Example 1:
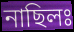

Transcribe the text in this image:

নাছিলঃ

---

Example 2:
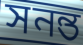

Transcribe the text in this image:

সনন্ত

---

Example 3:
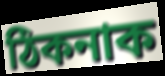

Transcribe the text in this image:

ঠিকনাক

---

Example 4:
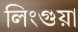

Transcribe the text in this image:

লিংগুয়া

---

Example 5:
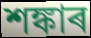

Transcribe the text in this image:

শঙ্কাৰ